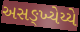
અસઙ્ખ્યેય્યે